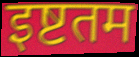
इष्टतम